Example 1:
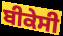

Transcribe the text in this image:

ਬੀਕੇਸੀ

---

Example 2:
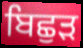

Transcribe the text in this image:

ਬਿਛੁੜ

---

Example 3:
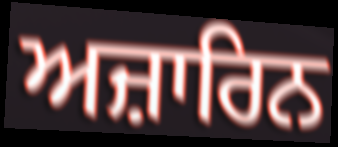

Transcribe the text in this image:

ਅਜ਼ਾਰਿਨ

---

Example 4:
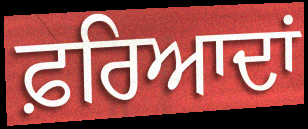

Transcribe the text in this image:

ਫ਼ਰਿਆਦਾਂ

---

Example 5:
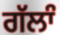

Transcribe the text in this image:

ਗੱਲਾੰ